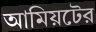
আমিয়টের